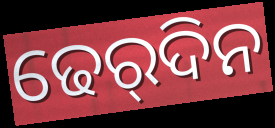
ଢେର୍‌ଦିନ